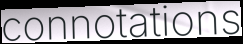
connotations